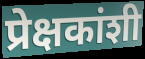
प्रेक्षकांशी